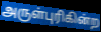
அருள்புரிகின்ற